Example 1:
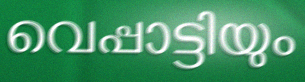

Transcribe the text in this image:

വെപ്പാട്ടിയും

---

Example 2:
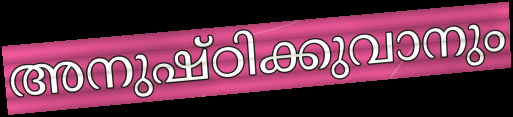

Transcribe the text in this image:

അനുഷ്ഠിക്കുവാനും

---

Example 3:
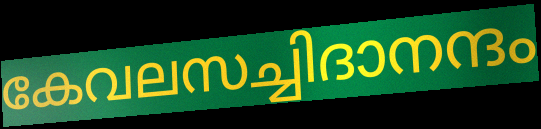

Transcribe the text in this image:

കേവലസച്ചിദാനന്ദം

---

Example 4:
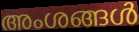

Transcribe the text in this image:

അംശങ്ങൾ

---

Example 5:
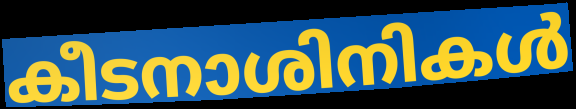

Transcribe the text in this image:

കീടനാശിനികൾ